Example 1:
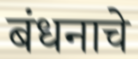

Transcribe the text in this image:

बंधनाचे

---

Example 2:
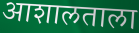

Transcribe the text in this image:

आशालताला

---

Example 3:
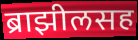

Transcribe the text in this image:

ब्राझीलसह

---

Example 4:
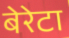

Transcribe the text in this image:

बेरेटा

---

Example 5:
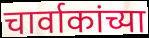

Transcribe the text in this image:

चार्वाकांच्या